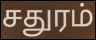
சதுரம்